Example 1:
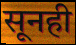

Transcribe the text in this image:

सूनही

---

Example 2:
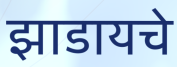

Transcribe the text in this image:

झाडायचे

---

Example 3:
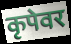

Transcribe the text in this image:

कृपेवर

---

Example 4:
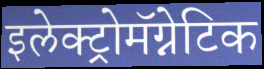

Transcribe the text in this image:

इलेक्ट्रोमॅग्नेटिक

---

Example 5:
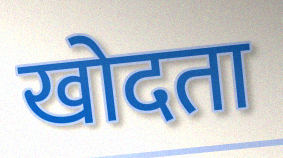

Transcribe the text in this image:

खोदता